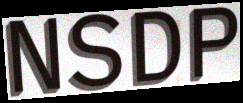
NSDP